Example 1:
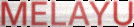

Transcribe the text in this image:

MELAYU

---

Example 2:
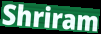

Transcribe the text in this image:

Shriram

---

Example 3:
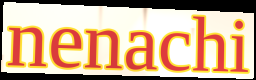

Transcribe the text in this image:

nenachi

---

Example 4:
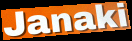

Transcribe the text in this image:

Janaki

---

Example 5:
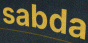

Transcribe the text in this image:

sabda